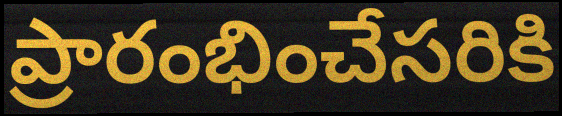
ప్రారంభించేసరికి